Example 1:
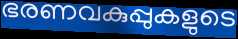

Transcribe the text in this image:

ഭരണവകുപ്പുകളുടെ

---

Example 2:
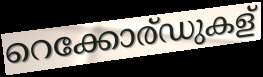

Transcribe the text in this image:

റെക്കോര്ഡുകള്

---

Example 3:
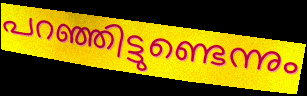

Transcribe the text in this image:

പറഞ്ഞിട്ടുണ്ടെന്നും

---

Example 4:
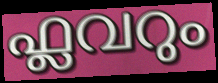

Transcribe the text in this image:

ഫ്ലവറും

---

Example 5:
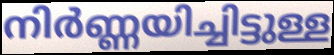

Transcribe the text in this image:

നിർണ്ണയിച്ചിട്ടുള്ള